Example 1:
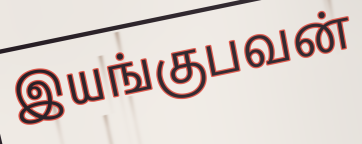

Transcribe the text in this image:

இயங்குபவன்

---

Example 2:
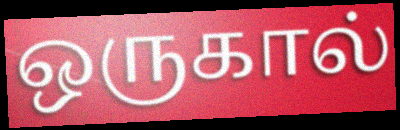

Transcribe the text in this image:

ஒருகால்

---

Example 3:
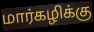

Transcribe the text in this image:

மார்கழிக்கு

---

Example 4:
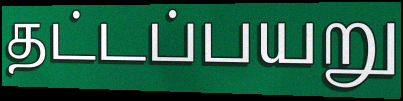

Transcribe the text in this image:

தட்டப்பயறு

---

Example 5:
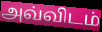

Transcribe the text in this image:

அவ்விடம்